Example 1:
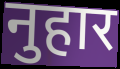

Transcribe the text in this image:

नुहार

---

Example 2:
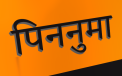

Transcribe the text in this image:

पिननुमा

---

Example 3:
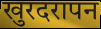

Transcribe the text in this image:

खुरदरापन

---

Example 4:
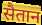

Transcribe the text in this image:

सैतान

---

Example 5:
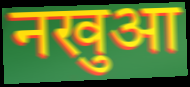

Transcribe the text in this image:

नखुआ